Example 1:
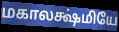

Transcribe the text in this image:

மகாலக்ஷ்மியே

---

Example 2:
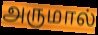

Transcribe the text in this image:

அருமால்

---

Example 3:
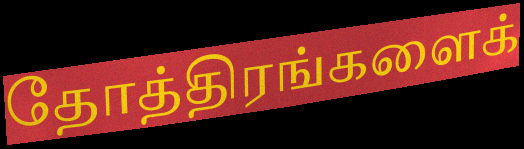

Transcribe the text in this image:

தோத்திரங்களைக்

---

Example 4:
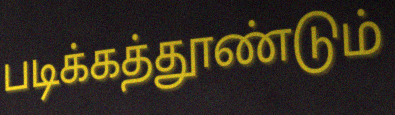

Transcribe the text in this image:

படிக்கத்தூண்டும்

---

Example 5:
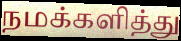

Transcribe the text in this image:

நமக்களித்து